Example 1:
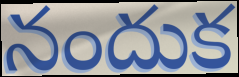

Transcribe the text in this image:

నందుక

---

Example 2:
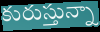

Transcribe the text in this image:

కురుస్తున్నా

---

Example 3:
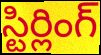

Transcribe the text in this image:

స్టిర్లింగ్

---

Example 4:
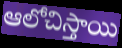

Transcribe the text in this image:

ఆలోచిస్తాయి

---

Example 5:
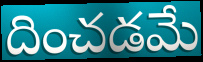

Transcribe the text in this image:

దించడమే